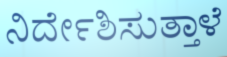
ನಿರ್ದೇಶಿಸುತ್ತಾಳೆ